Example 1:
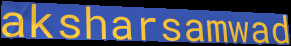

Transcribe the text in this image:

aksharsamwad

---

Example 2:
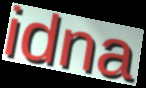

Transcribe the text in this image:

idna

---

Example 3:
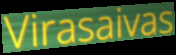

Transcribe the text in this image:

Virasaivas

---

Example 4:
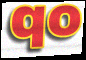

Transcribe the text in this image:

qo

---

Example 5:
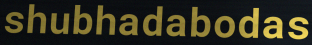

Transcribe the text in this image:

shubhadabodas